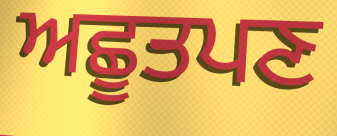
ਅਛੂਤਪਣ